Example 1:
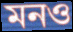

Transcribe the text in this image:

মনও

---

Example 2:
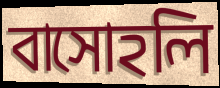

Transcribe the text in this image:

বাসোহলি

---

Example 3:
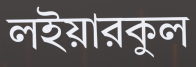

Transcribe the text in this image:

লইয়ারকুল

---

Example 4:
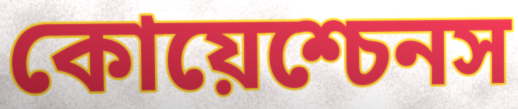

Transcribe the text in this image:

কোয়েশ্চেনস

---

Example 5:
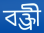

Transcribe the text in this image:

বক্ত্রী